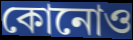
কোনোও